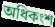
অধিকংশ